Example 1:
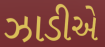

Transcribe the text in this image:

ઝાડીએ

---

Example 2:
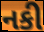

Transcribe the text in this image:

નકી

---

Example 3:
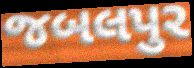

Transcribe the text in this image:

જબલપુર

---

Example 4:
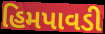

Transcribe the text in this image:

હિમપાવડી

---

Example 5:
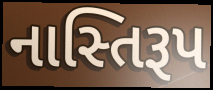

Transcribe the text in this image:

નાસ્તિરૂપ